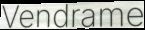
Vendrame